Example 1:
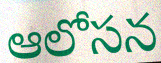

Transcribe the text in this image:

ఆలోసన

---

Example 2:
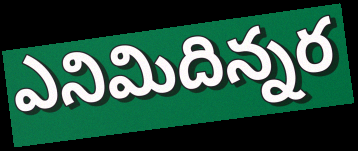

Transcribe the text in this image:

ఎనిమిదిన్నర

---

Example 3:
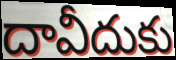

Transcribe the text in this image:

దావీదుకు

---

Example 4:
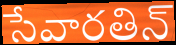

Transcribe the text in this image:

సేవారతిన్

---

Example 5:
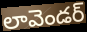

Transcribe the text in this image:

లావెండర్